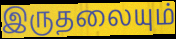
இருதலையும்